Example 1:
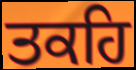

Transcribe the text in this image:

ਤਕਹਿ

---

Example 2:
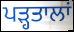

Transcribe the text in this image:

ਪੜ੍ਹਤਾਲਾਂ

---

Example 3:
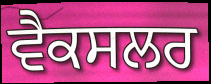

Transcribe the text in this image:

ਵੈਕਸਲਰ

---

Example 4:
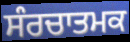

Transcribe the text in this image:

ਸੰਰਚਾਤਮਕ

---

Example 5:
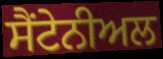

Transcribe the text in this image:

ਸੈਂਟੇਨੀਅਲ